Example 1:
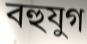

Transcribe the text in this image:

বহুযুগ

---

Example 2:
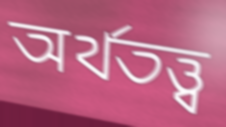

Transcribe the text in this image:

অৰ্থতত্ত্ব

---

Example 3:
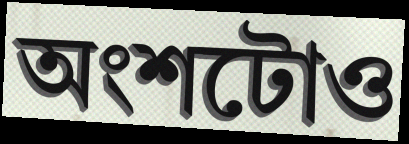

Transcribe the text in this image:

অংশটোও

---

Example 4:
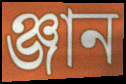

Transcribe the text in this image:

ঞ্জান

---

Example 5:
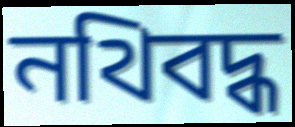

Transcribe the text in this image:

নথিবদ্ধ